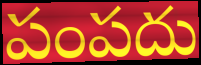
పంపదు